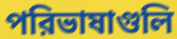
পরিভাষাগুলি